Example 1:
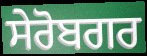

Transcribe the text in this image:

ਸੇਰੋਬਗਰ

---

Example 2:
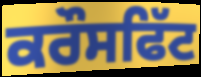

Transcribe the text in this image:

ਕਰੌਸਫਿੱਟ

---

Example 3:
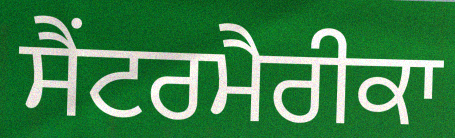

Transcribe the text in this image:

ਸੈਂਟਰਮੈਰੀਕਾ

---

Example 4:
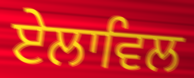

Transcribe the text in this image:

ਏਲਾਵਿਲ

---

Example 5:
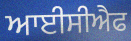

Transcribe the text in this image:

ਆਈਸੀਐਫ